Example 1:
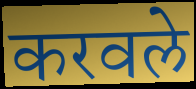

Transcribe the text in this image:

करवले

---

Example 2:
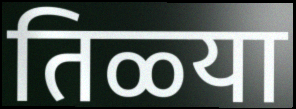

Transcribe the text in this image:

तिळ्या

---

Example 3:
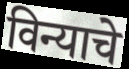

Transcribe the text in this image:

विन्याचे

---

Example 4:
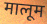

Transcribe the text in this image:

मालूम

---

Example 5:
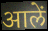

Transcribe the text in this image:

आलें